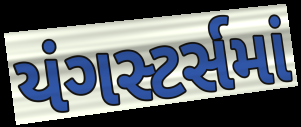
યંગસ્ટર્સમાં